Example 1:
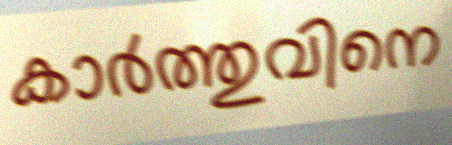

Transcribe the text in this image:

കാർത്തുവിനെ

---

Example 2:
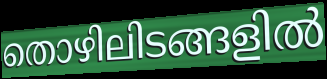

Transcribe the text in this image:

തൊഴിലിടങ്ങളിൽ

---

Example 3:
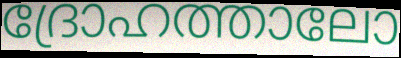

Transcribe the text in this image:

ദ്രോഹത്താലോ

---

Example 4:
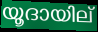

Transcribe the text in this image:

യൂദായില്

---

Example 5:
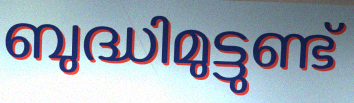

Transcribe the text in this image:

ബുദ്ധിമുട്ടുണ്ട്